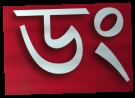
ডং